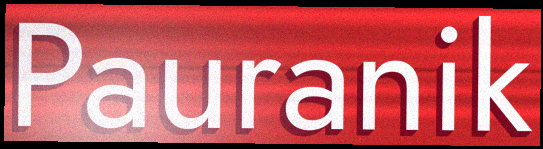
Pauranik